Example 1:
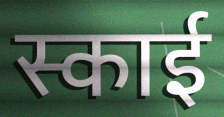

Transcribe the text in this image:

स्काई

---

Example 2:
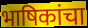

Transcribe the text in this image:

भाषिकांचा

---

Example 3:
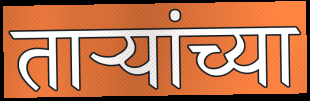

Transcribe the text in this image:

तार्‍यांच्या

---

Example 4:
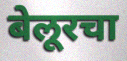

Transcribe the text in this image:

बेलूरचा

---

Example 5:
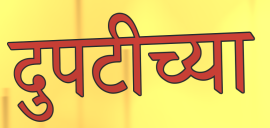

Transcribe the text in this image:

दुपटीच्या